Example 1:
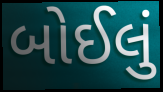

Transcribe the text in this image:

બોઈલું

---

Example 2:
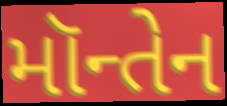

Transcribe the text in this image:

મૉન્તેન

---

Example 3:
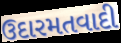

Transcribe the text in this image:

ઉદારમતવાદી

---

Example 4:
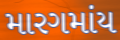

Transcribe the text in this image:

મારગમાંય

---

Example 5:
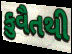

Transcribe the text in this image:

કુવૈતથી